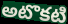
అటొకటి